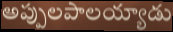
అప్పులపాలయ్యాడు